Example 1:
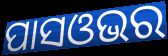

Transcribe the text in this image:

ପାସଓଭର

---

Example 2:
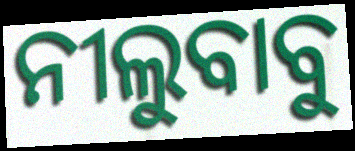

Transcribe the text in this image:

ନୀଲୁବାବୁ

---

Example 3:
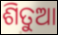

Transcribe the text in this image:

ଶିତୁଆ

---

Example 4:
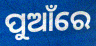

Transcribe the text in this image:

ପୁଆଁରେ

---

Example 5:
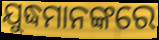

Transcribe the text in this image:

ଯୁଦ୍ଧମାନଙ୍କରେ